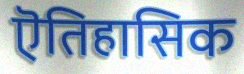
ऎतिहासिक